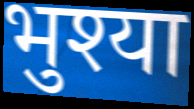
भुश्या